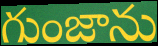
గుంజాను